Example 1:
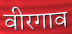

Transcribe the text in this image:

वीरगाव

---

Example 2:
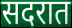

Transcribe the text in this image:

सदरात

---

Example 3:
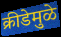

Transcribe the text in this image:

क्रीडेमुळे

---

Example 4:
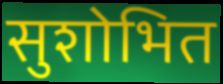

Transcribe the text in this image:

सुशोभित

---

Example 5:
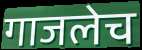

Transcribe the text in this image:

गाजलेच